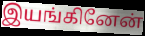
இயங்கினேன்